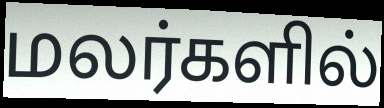
மலர்களில்